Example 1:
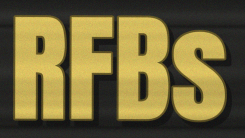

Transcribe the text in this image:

RFBs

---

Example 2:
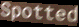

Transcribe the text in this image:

Spotted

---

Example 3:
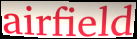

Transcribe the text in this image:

airfield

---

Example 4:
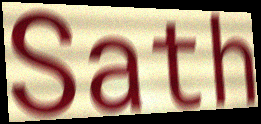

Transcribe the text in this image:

Sath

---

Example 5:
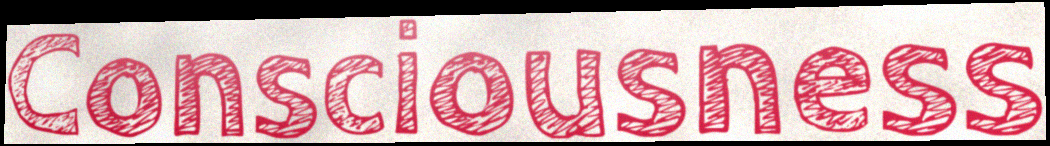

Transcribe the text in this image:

Consciousness